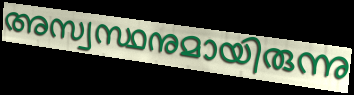
അസ്വസ്ഥനുമായിരുന്നു